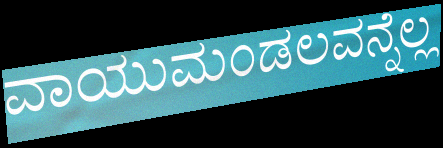
ವಾಯುಮಂಡಲವನ್ನೆಲ್ಲ